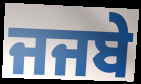
ਜਜਬੇ